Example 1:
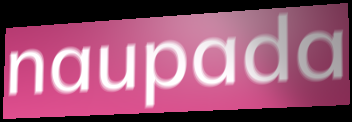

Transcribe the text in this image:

naupada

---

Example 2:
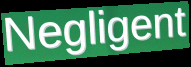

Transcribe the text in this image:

Negligent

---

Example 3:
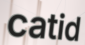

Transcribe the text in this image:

catid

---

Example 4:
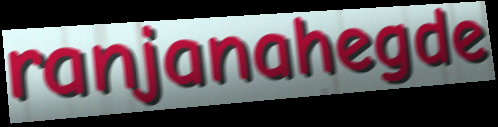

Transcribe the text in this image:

ranjanahegde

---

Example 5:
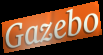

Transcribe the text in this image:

Gazebo